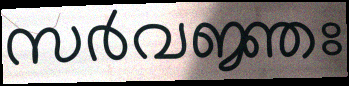
സർവജ്ഞഃ